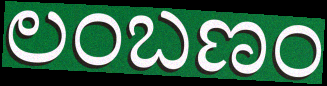
ಲಂಬಣಂ